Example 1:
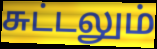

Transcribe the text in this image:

சுட்டலும்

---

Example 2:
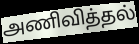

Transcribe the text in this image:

அணிவித்தல்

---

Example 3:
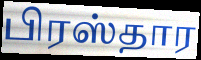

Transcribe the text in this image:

பிரஸ்தார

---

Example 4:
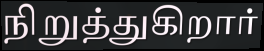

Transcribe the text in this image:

நிறுத்துகிறார்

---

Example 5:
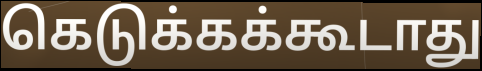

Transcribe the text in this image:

கெடுக்கக்கூடாது